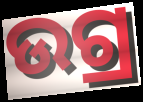
ଉଗ୍ର